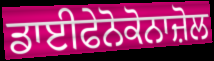
ਡਾਈਫੇਨੋਕੋਨਾਜ਼ੋਲ